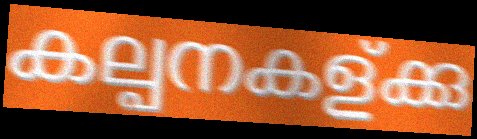
കല്പനകള്ക്കു